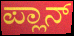
ಪ್ಲಾನ್